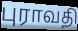
புராவதி